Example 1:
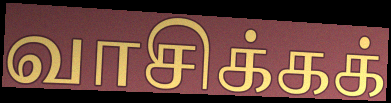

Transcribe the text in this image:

வாசிக்கக்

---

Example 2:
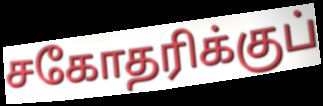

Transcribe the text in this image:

சகோதரிக்குப்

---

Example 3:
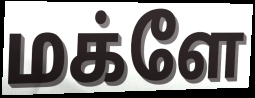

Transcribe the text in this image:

மக்ளே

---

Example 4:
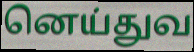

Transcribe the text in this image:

னெய்துவ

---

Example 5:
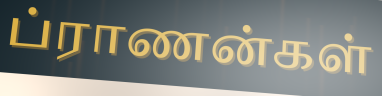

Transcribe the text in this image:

ப்ராணன்கள்